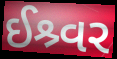
ઈશ્ર્વર